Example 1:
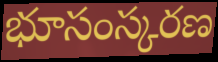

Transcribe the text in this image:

భూసంస్కరణ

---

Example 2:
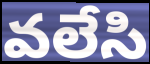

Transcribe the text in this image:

వలేసి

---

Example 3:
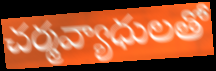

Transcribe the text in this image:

చర్మవ్యాధులతో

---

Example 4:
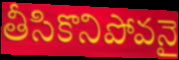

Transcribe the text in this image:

తీసికొనిపోవనై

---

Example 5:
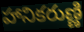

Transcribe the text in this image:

హానికరుణ్ణి